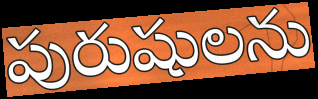
పురుషులను